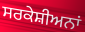
ਸਰਕੇਸ਼ੀਅਨਾਂ